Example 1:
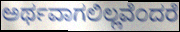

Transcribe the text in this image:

ಅರ್ಥವಾಗಲಿಲ್ಲವೆಂದರೆ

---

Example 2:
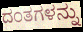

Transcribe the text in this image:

ದಂತಗಳನ್ನು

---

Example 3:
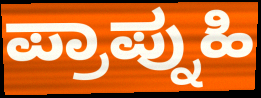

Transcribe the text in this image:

ಪ್ರಾಪ್ನುಹಿ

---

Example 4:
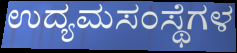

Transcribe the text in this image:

ಉದ್ಯಮಸಂಸ್ಥೆಗಳ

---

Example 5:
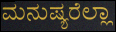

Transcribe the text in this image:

ಮನುಷ್ಯರೆಲ್ಲಾ